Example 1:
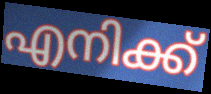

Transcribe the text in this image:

എനിക്ക്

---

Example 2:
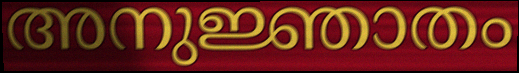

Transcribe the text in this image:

അനുജ്ഞാതം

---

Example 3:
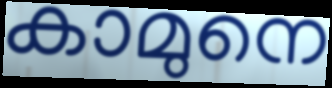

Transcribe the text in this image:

കാമുനെ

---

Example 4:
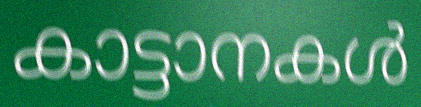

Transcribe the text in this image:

കാട്ടാനകൾ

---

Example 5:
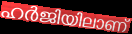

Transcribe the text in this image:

ഹർജിയിലാണ്